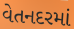
વેતનદરમાં